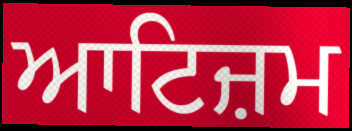
ਆਟਿਜ਼ਮ